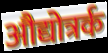
औद्योत्रर्क